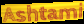
Ashtami